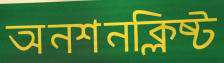
অনশনক্লিষ্ট